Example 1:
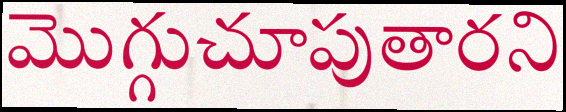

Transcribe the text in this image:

మొగ్గుచూపుతారని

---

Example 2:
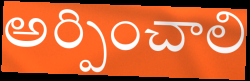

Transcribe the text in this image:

అర్పించాలి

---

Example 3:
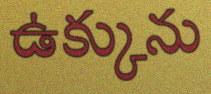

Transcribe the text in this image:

ఉక్కును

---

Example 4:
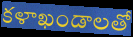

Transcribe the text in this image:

కళాఖండాలతో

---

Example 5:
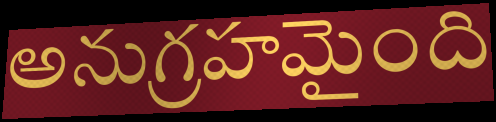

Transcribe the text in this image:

అనుగ్రహమైంది